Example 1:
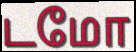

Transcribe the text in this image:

டமோ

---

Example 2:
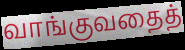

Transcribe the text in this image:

வாங்குவதைத்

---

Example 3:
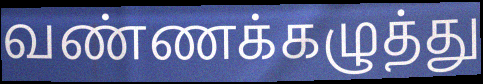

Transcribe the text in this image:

வண்ணக்கழுத்து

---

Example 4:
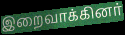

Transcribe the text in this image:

இறைவாக்கினர்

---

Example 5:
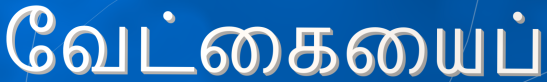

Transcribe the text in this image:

வேட்கையைப்